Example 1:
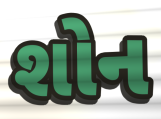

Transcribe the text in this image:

શોન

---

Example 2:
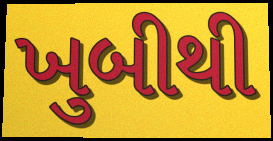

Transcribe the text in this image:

ખુબીથી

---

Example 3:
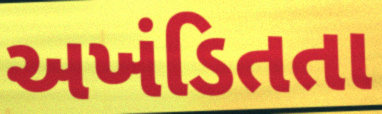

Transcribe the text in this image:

અખંડિતતા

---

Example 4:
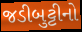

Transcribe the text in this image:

જડીબુટ્ટીનો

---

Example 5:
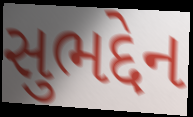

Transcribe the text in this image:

સુભદ્દેન